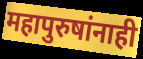
महापुरुषांनाही